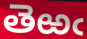
తెఱఁ